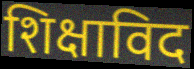
शिक्षाविद